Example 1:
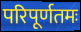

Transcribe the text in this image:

परिपूर्णतमः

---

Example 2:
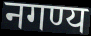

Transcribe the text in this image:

नगण्य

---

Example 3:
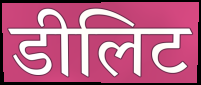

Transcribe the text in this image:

डीलिट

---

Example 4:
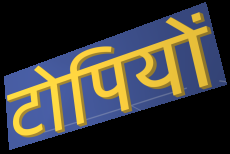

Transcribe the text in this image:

टोपियों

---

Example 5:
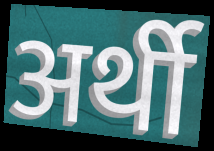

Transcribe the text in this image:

अर्थी